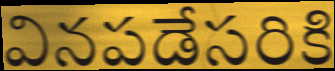
వినపడేసరికి